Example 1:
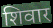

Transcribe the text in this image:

शिवार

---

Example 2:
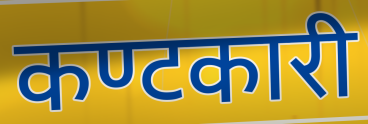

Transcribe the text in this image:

कण्टकारी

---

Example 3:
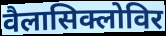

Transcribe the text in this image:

वैलासिक्लोविर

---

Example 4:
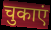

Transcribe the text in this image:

चुकाएं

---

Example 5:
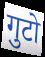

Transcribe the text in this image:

गुटो